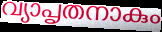
വ്യാപൃതനാകും